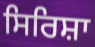
ਸਿਰਿਸ਼ਾ